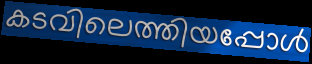
കടവിലെത്തിയപ്പോൾ